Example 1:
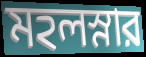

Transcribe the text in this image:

মহলস্নার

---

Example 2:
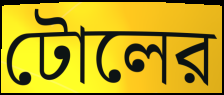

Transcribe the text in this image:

টোলের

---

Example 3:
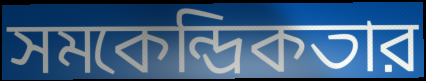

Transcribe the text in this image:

সমকেন্দ্রিকতার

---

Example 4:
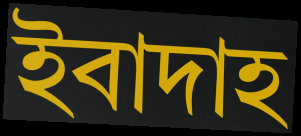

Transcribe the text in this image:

ইবাদাহ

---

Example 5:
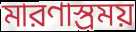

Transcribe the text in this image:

মারণাস্ত্রময়